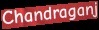
Chandraganj